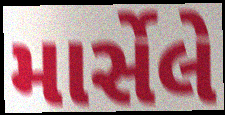
માર્સેલે